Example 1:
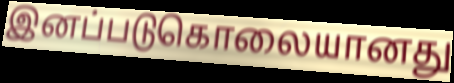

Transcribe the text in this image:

இனப்படுகொலையானது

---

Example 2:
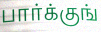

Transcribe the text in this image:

பார்க்குங்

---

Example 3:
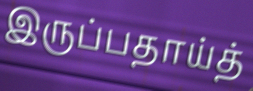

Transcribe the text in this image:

இருப்பதாய்த்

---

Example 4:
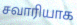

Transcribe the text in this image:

சவாரியாக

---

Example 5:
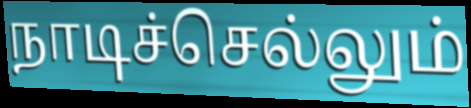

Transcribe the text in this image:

நாடிச்செல்லும்